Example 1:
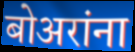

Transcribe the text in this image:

बोअरांना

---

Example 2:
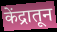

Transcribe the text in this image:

केंद्रातून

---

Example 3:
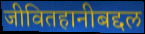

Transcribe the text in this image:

जीवितहानीबद्दल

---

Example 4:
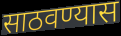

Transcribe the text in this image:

साठवण्यास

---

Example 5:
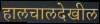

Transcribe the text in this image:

हालचालदेखील